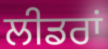
ਲੀਡਰਾਂ